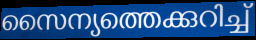
സൈന്യത്തെക്കുറിച്ച്